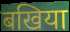
बखिया